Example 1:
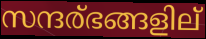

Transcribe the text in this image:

സന്ദര്ഭങ്ങളില്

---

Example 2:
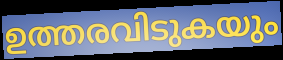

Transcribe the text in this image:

ഉത്തരവിടുകയും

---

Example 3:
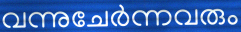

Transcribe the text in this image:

വന്നുചേർന്നവരും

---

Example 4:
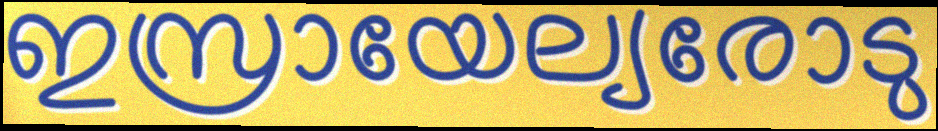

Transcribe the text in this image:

ഇസ്രായേല്യരോടു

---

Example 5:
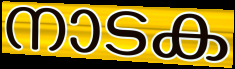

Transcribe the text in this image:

നാടക